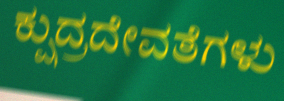
ಕ್ಷುದ್ರದೇವತೆಗಳು